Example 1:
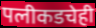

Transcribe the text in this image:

पलीकडचेही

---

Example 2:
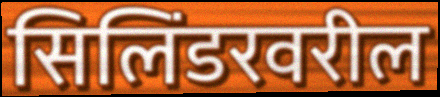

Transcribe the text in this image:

सिलिंडरवरील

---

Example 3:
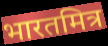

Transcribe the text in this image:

भारतमित्र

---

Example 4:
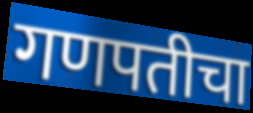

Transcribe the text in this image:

गणपतीचा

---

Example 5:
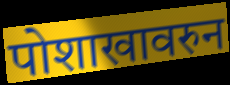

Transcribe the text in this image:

पोशाखावरुन